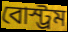
বোস্ট্রম